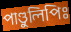
পাণ্ডুলিপিঃ